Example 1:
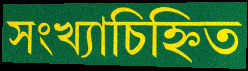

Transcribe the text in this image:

সংখ্যাচিহ্নিত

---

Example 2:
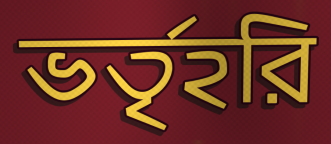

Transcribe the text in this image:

ভর্তৃহরি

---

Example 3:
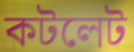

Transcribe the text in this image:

কটলেট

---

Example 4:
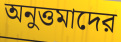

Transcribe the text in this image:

অনুত্তমাদের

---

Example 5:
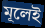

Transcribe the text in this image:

মূলেই